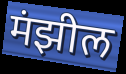
मंझील